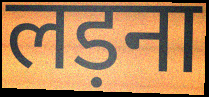
लड़ना